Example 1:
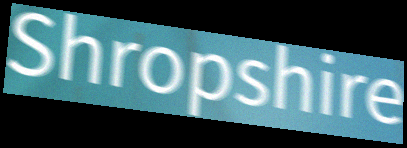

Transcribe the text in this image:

Shropshire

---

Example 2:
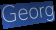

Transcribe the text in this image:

Georg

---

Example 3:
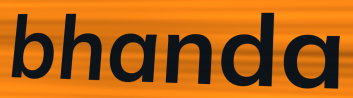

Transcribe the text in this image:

bhanda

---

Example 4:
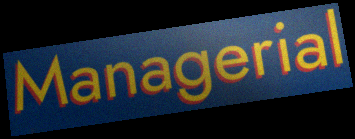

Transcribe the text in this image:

Managerial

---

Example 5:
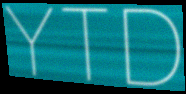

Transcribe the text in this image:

YTD